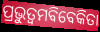
ପ୍ରଭୁତ୍ୱମବିବେକିତା